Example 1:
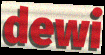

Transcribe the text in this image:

dewi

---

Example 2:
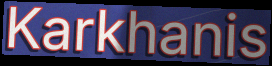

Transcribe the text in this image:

Karkhanis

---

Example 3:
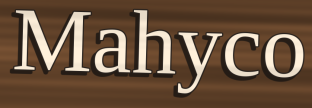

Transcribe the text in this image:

Mahyco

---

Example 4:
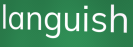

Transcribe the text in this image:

languish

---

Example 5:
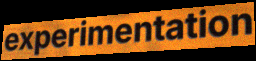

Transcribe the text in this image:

experimentation